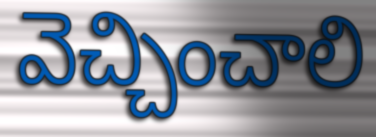
వెచ్చించాలి